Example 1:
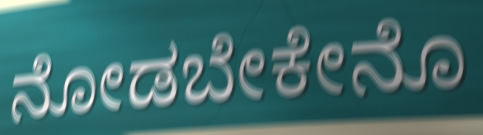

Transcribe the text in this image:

ನೋಡಬೇಕೇನೊ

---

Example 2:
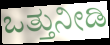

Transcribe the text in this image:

ಒತ್ತುನೀಡಿ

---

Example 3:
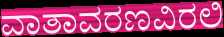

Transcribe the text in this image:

ವಾತಾವರಣವಿರಲಿ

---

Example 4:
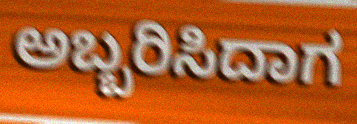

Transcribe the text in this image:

ಅಬ್ಬರಿಸಿದಾಗ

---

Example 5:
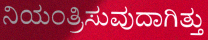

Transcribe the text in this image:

ನಿಯಂತ್ರಿಸುವುದಾಗಿತ್ತು